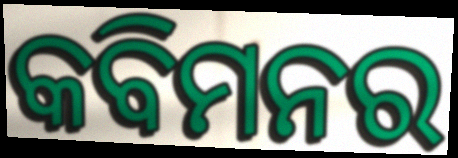
କବିମନର